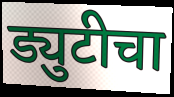
ड्युटीचा